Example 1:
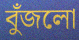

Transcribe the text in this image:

বুঁজলো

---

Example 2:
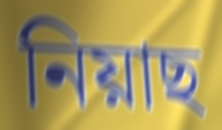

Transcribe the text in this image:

নিয়াছ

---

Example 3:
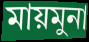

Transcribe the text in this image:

মায়মুনা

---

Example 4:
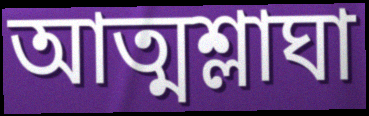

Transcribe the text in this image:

আত্মশ্লাঘা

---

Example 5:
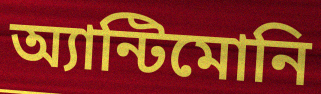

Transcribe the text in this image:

অ্যান্টিমোনি